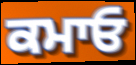
ਕਮਾਓ